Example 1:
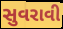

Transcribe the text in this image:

સુવરાવી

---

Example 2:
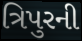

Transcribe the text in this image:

ત્રિપુરની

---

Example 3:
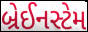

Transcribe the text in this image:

બ્રેઈનસ્ટેમ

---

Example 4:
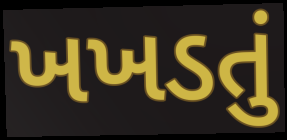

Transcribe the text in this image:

ખખડતું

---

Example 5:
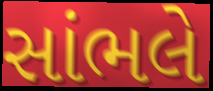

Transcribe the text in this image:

સાંભલે